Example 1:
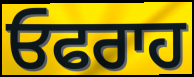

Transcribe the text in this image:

ਓਫਰਾਹ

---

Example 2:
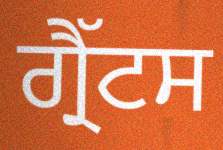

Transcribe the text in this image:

ਗ੍ਰੈੱਟਸ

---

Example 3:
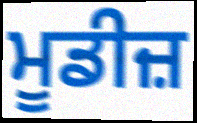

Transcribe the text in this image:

ਮੂਡੀਜ਼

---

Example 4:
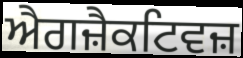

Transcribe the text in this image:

ਐਗਜ਼ੈਕਟਿਵਜ਼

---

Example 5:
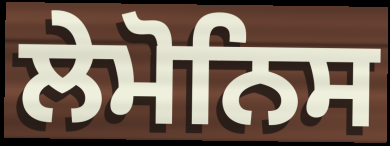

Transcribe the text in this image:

ਲੇਮੋਨਿਸ